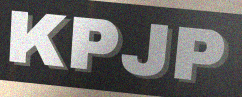
KPJP